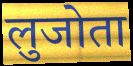
लुजोता